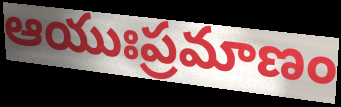
ఆయుఃప్రమాణం